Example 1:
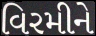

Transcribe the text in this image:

વિરમીને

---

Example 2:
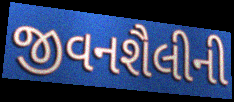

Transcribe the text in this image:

જીવનશૈલીની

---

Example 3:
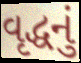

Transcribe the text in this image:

વૃદ્ધનું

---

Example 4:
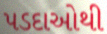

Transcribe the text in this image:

પડદાઓથી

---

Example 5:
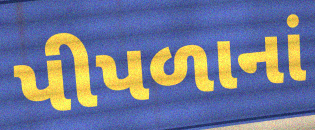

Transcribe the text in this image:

પીપળાનાં